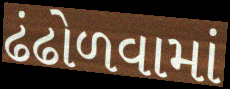
ઢંઢોળવામાં